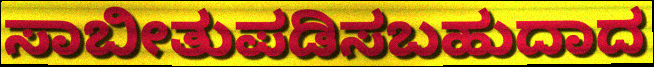
ಸಾಬೀತುಪಡಿಸಬಹುದಾದ